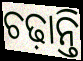
ଚଢ଼ାନ୍ତି